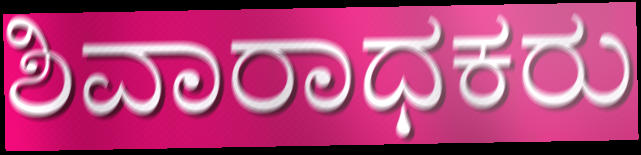
ಶಿವಾರಾಧಕರು